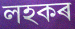
লহকৰ